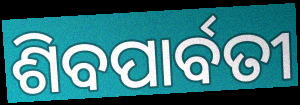
ଶିବପାର୍ବତୀ